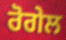
ਰੋਗੇਲ